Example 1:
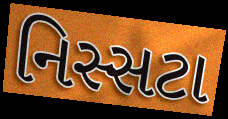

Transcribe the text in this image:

નિસ્સટા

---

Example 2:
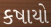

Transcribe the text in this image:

કષાયો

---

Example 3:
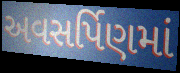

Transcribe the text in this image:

અવસર્પિણમાં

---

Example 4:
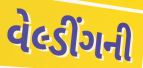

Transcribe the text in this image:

વેલ્ડીંગની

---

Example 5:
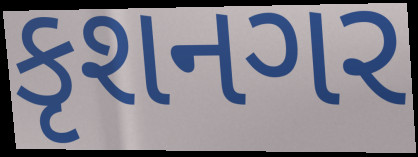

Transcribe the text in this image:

કૃશનગર